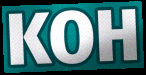
KOH